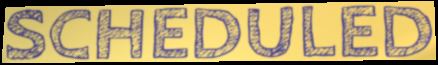
SCHEDULED